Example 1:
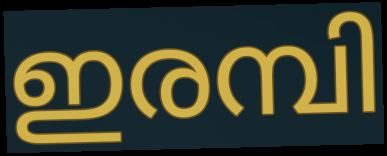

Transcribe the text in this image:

ഇരമ്പി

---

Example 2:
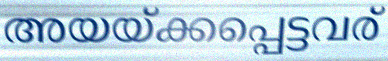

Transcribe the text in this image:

അയയ്ക്കപ്പെട്ടവര്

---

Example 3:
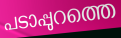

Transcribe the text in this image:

പടാപ്പുറത്തെ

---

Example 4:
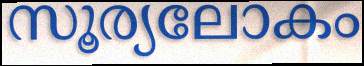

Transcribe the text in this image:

സൂര്യലോകം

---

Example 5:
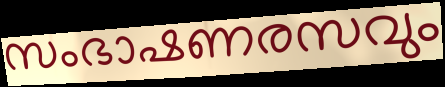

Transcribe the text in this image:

സംഭാഷണരസവും